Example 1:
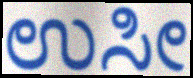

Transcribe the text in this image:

ಉಸೀ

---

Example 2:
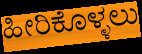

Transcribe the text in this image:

ಹೀರಿಕೊಳ್ಳಲು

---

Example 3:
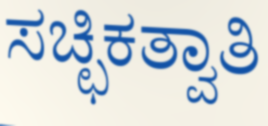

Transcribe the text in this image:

ಸಚ್ಛಿಕತ್ವಾತಿ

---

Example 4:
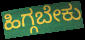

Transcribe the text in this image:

ಹಿಗ್ಗಬೇಕು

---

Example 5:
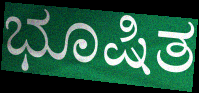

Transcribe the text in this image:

ಭೂಷಿತ